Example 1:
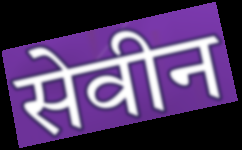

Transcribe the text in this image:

सेवीन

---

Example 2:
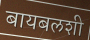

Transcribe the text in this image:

बायबलशी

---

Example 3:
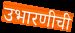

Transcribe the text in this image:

उभारणीची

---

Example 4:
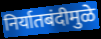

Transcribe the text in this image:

निर्यातबंदीमुळे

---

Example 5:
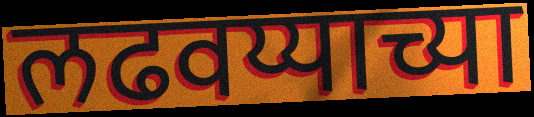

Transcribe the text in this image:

लढवय्याच्या